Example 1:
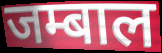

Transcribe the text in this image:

जम्बाल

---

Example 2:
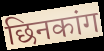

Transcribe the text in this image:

छिनकांग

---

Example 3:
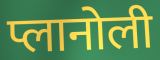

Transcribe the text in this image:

प्लानोली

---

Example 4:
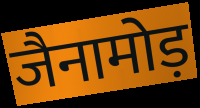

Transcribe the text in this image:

जैनामोड़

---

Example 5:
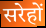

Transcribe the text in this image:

सरेहों